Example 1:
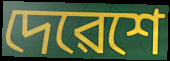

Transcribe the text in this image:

দেৱেশে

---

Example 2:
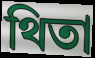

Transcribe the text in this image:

থিতা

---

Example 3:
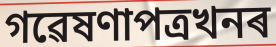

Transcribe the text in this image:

গৱেষণাপত্ৰখনৰ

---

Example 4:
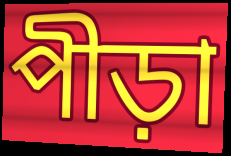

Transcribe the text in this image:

পীড়া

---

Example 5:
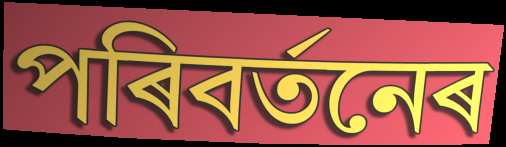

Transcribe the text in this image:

পৰিবৰ্তনেৰ